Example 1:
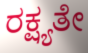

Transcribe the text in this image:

ರಕ್ಷ್ಯತೇ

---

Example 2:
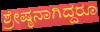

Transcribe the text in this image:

ಶ್ರೇಷ್ಠನಾಗಿದ್ದರೂ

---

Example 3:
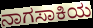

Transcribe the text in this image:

ನಾಗಸಾಕಿಯ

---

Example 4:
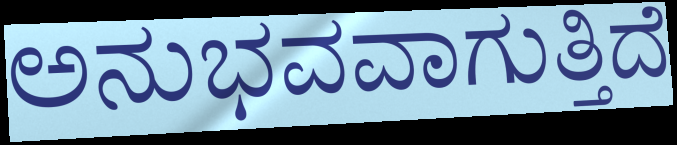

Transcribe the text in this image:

ಅನುಭವವಾಗುತ್ತಿದೆ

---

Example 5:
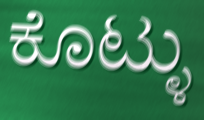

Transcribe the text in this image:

ಕೊಟ್ಳು